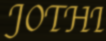
JOTHI